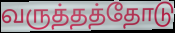
வருத்தத்தோடு